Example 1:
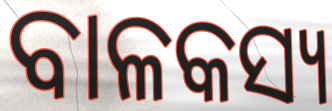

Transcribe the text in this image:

ବାଳକସ୍ୟ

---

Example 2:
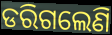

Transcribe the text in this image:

ଡରିଗଲେଣି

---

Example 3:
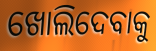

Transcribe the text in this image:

ଖୋଲିଦେବାକୁ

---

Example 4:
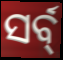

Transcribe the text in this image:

ସର୍ବ୍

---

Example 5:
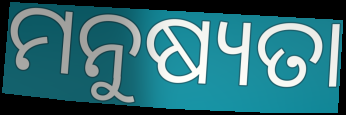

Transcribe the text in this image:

ମନୁଷ୍ୟତା